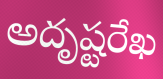
అదృష్టరేఖ